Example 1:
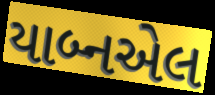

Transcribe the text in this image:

યાબ્નએલ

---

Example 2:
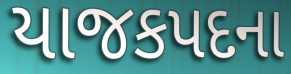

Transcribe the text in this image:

યાજકપદના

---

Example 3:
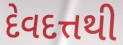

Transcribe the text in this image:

દેવદત્તથી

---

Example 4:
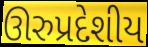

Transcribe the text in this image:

ઊરુપ્રદેશીય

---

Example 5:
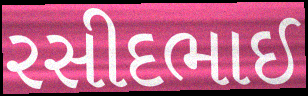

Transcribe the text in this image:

રસીદભાઈ